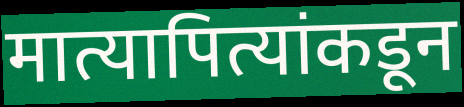
मात्यापित्यांकडून